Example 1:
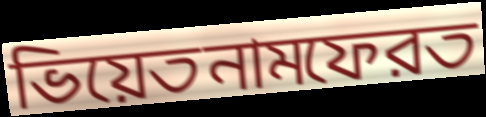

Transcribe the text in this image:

ভিয়েতনামফেরত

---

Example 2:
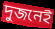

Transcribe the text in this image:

দুজনেই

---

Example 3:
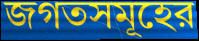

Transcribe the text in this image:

জগতসমূহের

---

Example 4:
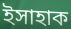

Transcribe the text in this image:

ইসাহাক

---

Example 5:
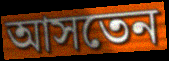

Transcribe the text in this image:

আসতেন